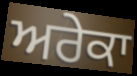
ਅਰੇਕਾ